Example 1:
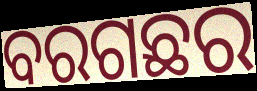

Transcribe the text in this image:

ବରଗଛର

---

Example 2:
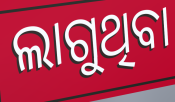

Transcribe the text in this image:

ଲାଗୁଥିବା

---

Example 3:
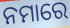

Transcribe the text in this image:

ନମାରେ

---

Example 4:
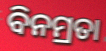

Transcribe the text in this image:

ବିନମ୍ରତା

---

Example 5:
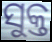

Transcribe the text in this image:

ସୁକ୍ତ